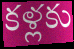
కళ్లకు